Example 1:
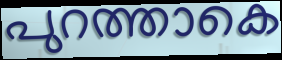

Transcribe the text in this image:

പുറത്താകെ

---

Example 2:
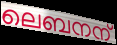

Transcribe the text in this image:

ലെബനന്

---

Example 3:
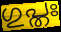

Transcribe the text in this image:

ഗുപ്തഃ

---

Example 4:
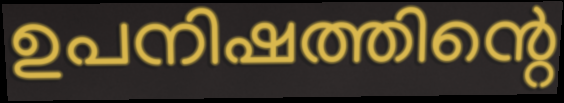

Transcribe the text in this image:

ഉപനിഷത്തിന്റെ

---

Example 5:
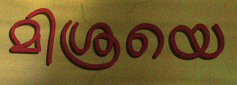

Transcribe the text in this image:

മിശ്രയെ